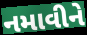
નમાવીને